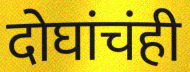
दोघांचंही